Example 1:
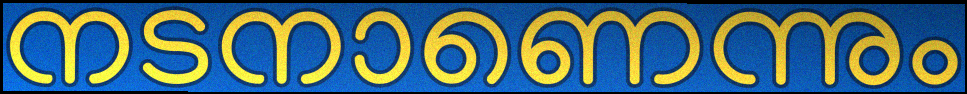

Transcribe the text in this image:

നടനാണെന്നും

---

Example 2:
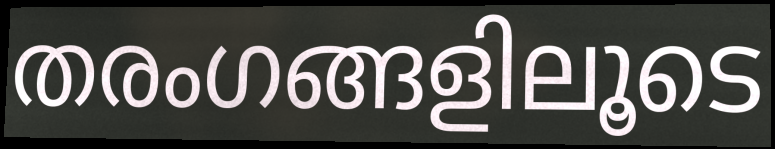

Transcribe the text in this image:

തരംഗങ്ങളിലൂടെ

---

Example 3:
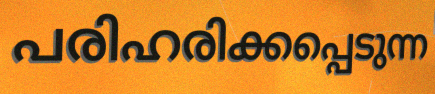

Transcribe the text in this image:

പരിഹരിക്കപ്പെടുന്ന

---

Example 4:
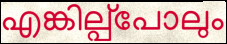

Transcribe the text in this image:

എങ്കില്പ്പോലും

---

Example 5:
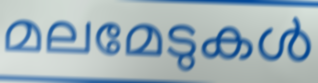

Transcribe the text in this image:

മലമേടുകൾ